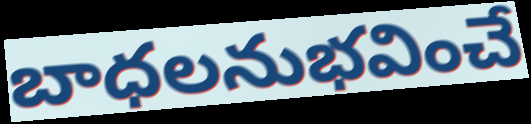
బాధలనుభవించే